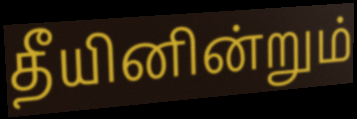
தீயினின்றும்